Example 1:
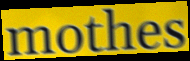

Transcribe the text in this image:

mothes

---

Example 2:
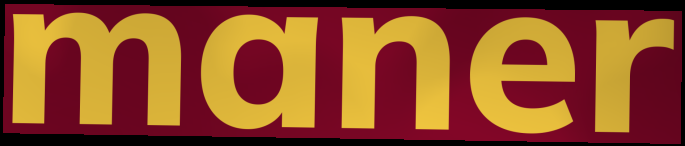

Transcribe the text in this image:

maner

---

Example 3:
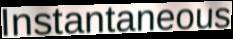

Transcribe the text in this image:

Instantaneous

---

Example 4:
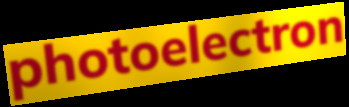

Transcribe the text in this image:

photoelectron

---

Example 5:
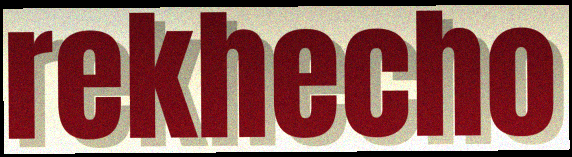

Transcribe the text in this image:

rekhecho